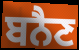
ਬਨੈਣ